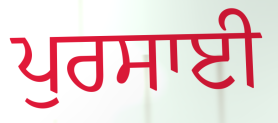
ਪੁਰਸਾਈ